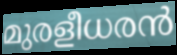
മുരളീധരൻ